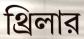
থ্রিলার